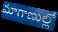
మాగాణుల్లో